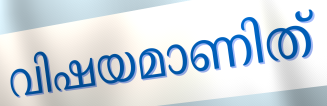
വിഷയമാണിത്